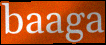
baaga